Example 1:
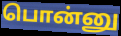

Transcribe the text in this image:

பொன்னு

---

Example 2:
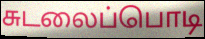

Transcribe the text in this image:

சுடலைப்பொடி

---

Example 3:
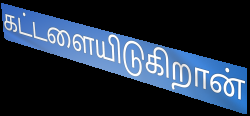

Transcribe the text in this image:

கட்டளையிடுகிறான்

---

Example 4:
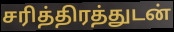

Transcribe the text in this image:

சரித்திரத்துடன்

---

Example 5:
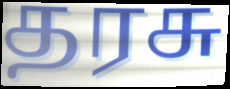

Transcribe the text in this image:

தரசு